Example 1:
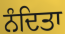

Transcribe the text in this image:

ਨੰਦਿਤਾ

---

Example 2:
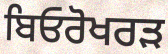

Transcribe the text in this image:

ਬਿਓਰੋਖਰੜ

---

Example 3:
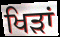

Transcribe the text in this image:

ਖਿੜਾਂ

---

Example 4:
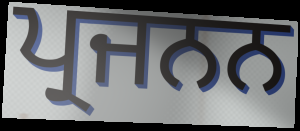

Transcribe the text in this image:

ਪ੍ਰਜਨਨ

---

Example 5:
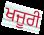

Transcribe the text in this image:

ਖਜੂਰੀ